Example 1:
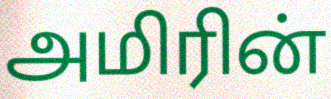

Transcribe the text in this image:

அமிரின்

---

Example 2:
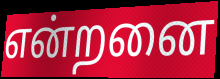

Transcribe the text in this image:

என்றனை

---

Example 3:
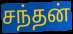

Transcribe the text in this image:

சந்தன்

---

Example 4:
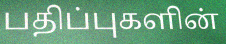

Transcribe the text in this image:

பதிப்புகளின்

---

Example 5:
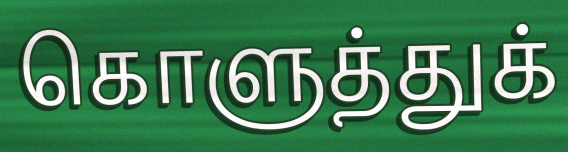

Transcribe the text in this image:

கொளுத்துக்